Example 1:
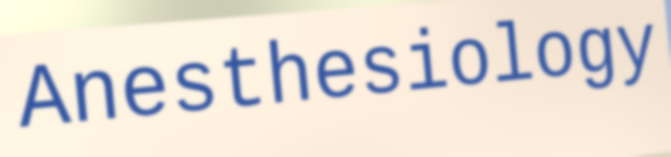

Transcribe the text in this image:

Anesthesiology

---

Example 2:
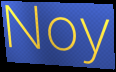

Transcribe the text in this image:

Noy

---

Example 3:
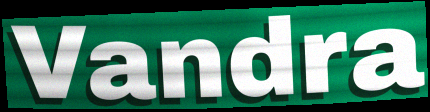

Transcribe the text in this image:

Vandra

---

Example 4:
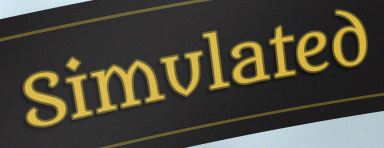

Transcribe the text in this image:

Simulated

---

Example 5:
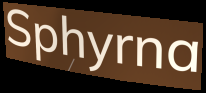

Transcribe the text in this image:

Sphyrna